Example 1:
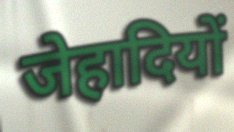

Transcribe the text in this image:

जेहादियों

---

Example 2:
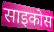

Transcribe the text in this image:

साइकोस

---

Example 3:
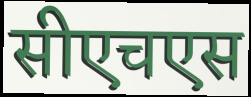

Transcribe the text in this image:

सीएचएस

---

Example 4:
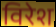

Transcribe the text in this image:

विरेश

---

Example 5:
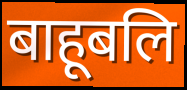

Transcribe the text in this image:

बाहूबलि